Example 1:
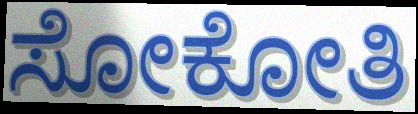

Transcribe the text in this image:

ಸೋಕೋತಿ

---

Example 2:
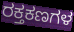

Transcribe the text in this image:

ರಕ್ತಕಣಗಳ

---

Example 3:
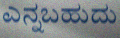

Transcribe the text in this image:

ಎನ್ನಬಹುದು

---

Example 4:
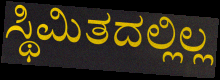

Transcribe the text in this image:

ಸ್ಥಿಮಿತದಲ್ಲಿಲ್ಲ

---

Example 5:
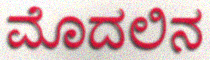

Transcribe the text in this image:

ಮೊದಲಿನ